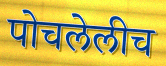
पोचलेलीच